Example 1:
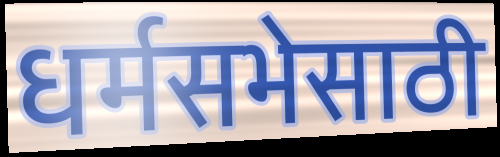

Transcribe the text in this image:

धर्मसभेसाठी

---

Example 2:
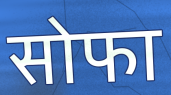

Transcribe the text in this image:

सोफा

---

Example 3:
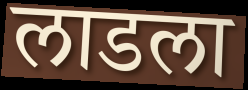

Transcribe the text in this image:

लाडला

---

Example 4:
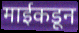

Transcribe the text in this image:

माईकडून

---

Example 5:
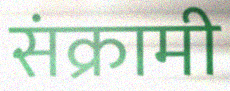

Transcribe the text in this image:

संक्रामी